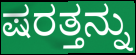
ಷರತ್ತನ್ನು